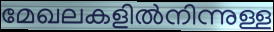
മേഖലകളിൽനിന്നുള്ള